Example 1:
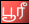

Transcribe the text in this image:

பூரீ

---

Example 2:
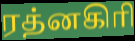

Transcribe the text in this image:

ரத்னகிரி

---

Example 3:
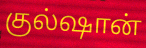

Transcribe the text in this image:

குல்ஷான்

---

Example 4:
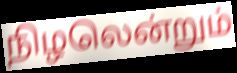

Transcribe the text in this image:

நிழலென்றும்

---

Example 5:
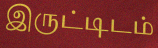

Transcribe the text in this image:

இருட்டிடம்